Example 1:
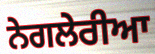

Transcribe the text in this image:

ਨੇਗਲੇਰੀਆ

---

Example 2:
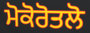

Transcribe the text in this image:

ਮੋਕੋਰੋਤਲੋ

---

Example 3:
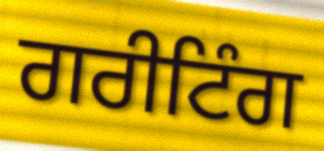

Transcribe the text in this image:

ਗਰੀਟਿੰਗ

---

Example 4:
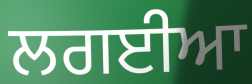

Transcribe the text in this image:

ਲਗਈਆ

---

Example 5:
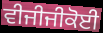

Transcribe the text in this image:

ਵੀਜੀਜੀਕੋਈ